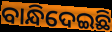
ବାନ୍ଧିଦେଇଛି